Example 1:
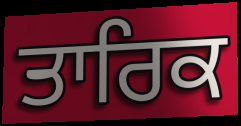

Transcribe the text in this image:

ਤਾਰਿਕ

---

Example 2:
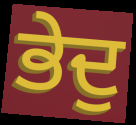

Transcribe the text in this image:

ਭੇਦੁ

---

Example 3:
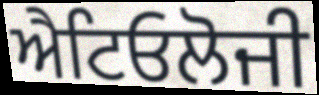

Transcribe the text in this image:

ਐਟਿਓਲੋਜੀ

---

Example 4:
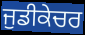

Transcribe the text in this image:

ਜੁਡੀਕੇਚਰ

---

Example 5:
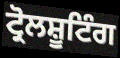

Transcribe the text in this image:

ਟ੍ਰੋਲਸ਼ੂਟਿੰਗ